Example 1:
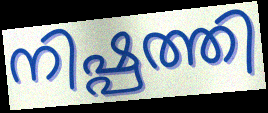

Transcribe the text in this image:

നിഷ്പത്തി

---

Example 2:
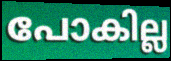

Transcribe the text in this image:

പോകില്ല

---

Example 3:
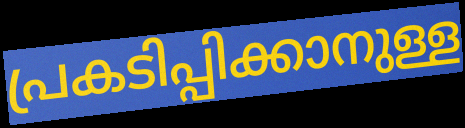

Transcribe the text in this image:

പ്രകടിപ്പിക്കാനുള്ള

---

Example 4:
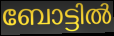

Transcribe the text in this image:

ബോട്ടിൽ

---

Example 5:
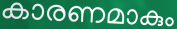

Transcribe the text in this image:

കാരണമാകും